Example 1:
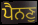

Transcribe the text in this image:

ਪੈਨਣੁ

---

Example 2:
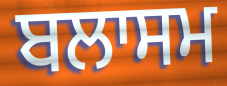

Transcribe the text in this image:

ਬਲਾਸਮ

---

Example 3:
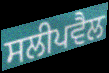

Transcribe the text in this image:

ਸਲੀਪਵੈਲ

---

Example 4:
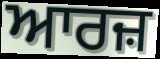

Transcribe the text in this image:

ਆਰਜ਼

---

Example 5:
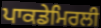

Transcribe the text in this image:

ਪਾਕਡੇਮਿਰਲੀ